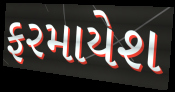
ફરમાયેશ